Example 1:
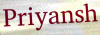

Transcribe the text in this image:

Priyansh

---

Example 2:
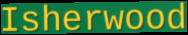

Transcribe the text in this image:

Isherwood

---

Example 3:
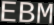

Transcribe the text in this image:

EBM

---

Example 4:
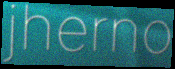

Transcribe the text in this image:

jherno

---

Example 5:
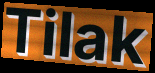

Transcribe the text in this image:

Tilak